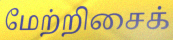
மேற்றிசைக்